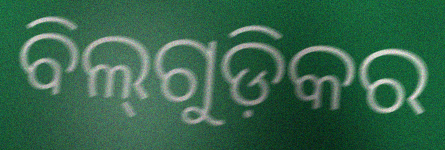
ବିଲ୍‌ଗୁଡ଼ିକର